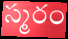
స్మరం